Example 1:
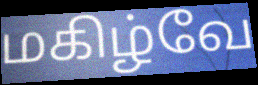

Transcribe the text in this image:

மகிழ்வே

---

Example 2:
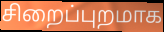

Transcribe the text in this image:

சிறைப்புறமாக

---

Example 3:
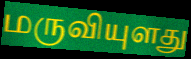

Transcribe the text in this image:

மருவியுளது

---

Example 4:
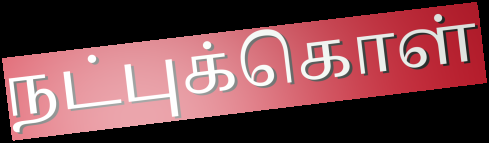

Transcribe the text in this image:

நட்புக்கொள்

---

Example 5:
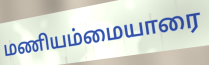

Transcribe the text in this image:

மணியம்மையாரை